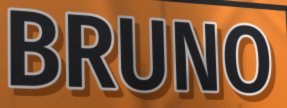
BRUNO